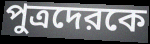
পুত্রদেরকে